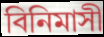
বিনিমাসী